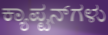
ಕ್ಯಾಪ್ಟನ್‌ಗಳು